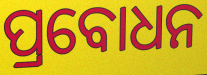
ପ୍ରବୋଧନ